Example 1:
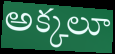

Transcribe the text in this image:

అక్కలూ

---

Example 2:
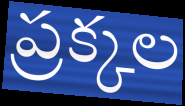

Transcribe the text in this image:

ప్రక్కల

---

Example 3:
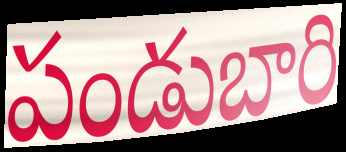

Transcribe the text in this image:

పండుబారి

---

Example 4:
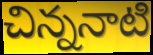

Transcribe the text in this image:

చిన్ననాటి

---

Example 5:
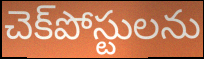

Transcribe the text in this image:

చెక్‌పోస్టులను